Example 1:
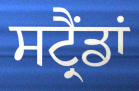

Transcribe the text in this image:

ਸਟ੍ਰੈਂਡਾਂ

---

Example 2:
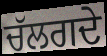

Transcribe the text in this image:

ਚੱਲਗਦੇ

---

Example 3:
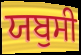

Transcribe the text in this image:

ਯਬੁਸੀ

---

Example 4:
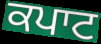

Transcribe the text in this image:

ਕਪਾਟ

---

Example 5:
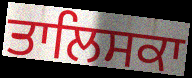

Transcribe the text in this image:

ਤਾਲਿਸਕਾ